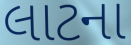
લાટના